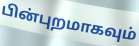
பின்புறமாகவும்